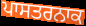
ਪਾਸਤਰਨਾਕ